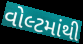
વોલ્ટમાંથી